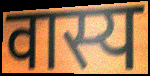
वास्य